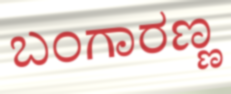
ಬಂಗಾರಣ್ಣ